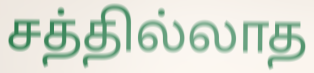
சத்தில்லாத